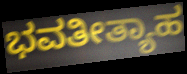
ಭವತೀತ್ಯಾಹ